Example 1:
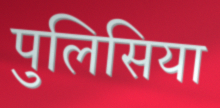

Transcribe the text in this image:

पुलिसिया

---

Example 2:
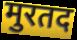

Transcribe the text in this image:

मुरतद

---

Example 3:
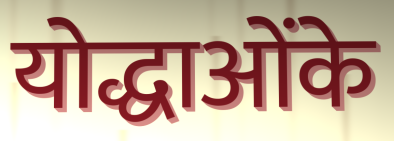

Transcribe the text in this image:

योद्धाओंके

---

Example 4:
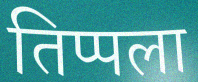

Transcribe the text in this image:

तिप्पला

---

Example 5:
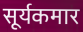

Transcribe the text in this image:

सूर्यकमार